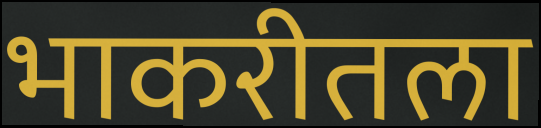
भाकरीतला